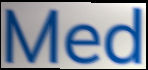
Med